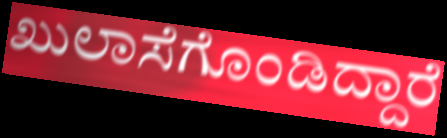
ಖುಲಾಸೆಗೊಂಡಿದ್ದಾರೆ